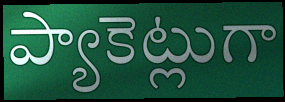
ప్యాకెట్లుగా